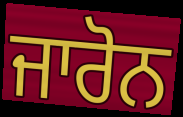
ਜਾਰੋਨ